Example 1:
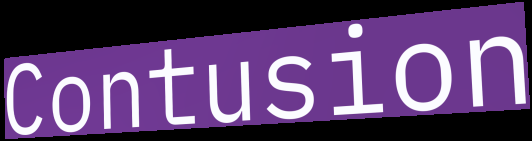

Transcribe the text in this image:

Contusion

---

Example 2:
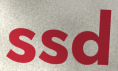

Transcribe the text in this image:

ssd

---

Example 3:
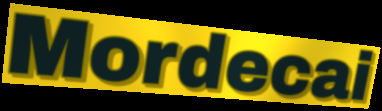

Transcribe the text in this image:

Mordecai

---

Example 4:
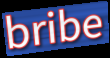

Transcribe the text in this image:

bribe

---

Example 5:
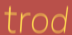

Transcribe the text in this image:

trod